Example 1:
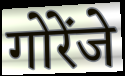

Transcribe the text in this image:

गोरेंजे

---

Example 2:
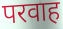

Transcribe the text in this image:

परवाह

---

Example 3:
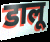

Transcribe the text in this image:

डालू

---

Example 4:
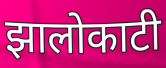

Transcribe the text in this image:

झालोकाटी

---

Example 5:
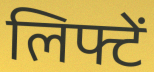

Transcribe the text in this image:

लिफ्टें